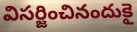
విసర్జించినందుకై